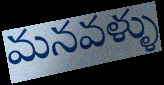
మనవళ్ళు